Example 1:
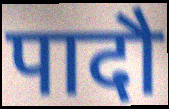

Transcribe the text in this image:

पादौ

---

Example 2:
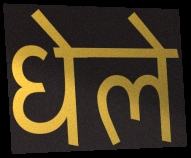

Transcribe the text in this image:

धेले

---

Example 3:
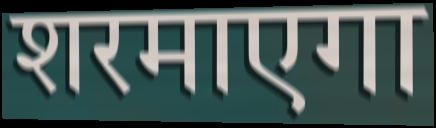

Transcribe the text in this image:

शरमाएगा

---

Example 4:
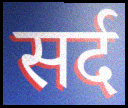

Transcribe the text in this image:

सर्द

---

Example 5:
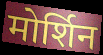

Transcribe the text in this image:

मोर्शिन